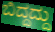
ಬಿದ್ದದ್ದು